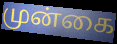
முன்கை